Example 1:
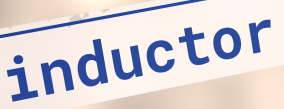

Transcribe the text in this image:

inductor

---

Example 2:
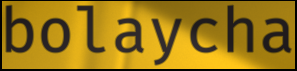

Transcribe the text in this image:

bolaycha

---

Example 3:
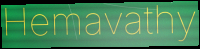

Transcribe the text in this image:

Hemavathy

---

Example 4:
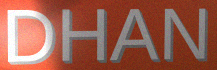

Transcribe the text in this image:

DHAN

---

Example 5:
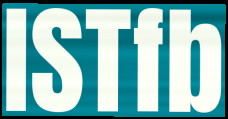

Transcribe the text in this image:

ISTfb